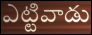
ఎట్టివాడు